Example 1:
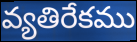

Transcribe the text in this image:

వ్యతిరేకము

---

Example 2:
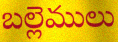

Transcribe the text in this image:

బల్లెములు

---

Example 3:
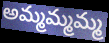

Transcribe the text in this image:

అమ్మమ్మమ్మ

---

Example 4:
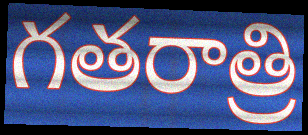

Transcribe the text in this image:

గతరాత్రి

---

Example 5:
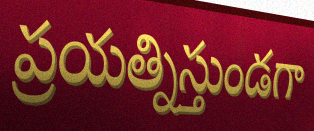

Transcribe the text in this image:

ప్రయత్నిస్తుండగా